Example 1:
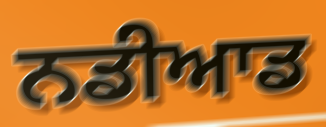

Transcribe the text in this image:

ਨਡੀਆਡ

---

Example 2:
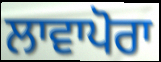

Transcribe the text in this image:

ਲਾਵਾਪੋਰਾ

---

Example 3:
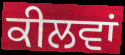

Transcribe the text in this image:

ਕੀਲਵਾਂ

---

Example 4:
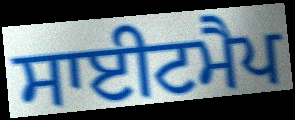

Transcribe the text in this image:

ਸਾਈਟਮੈਪ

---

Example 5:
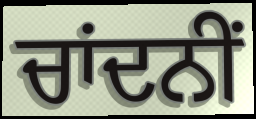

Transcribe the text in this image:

ਚਾਂਦਨੀਂ